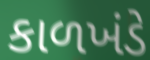
કાળખંડે